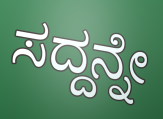
ಸದ್ದನ್ನೇ